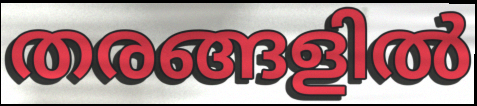
തരങ്ങളിൽ